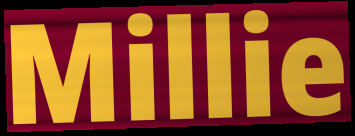
Millie